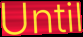
Until